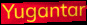
Yugantar